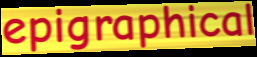
epigraphical